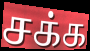
சக்க